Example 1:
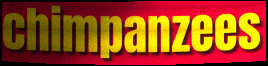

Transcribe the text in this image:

chimpanzees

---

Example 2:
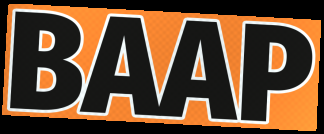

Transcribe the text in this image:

BAAP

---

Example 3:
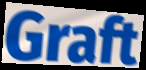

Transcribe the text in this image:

Graft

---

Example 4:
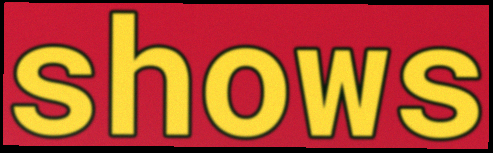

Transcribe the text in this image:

shows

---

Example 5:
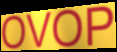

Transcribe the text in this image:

OVOP